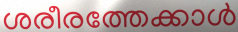
ശരീരത്തേക്കാൾ